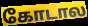
கோடால